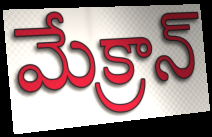
మేక్రాన్